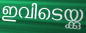
ഇവിടെയ്ക്കു